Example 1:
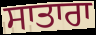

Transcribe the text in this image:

ਸਾਤਾਰਾ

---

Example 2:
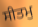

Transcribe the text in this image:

ਸੀਤਮੁ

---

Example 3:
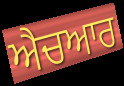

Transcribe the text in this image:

ਐਚਆਰ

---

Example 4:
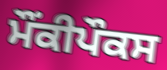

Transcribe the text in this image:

ਮੌਂਕੀਪੌਕਸ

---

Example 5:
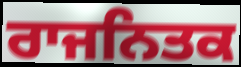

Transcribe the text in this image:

ਰਾਜਨਿਤਕ